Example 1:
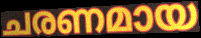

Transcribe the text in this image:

ചരണമായ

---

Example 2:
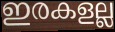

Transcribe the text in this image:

ഇരകളല്ല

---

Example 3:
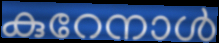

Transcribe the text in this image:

കുറേനാൾ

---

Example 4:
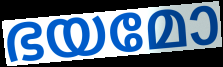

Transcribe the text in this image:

ഭയമോ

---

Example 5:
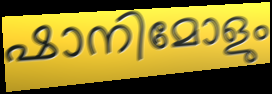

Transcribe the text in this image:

ഷാനിമോളും